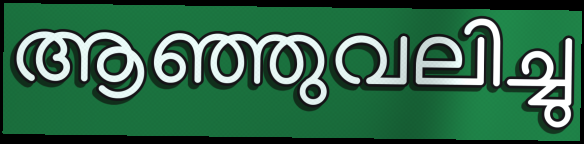
ആഞ്ഞുവലിച്ചു